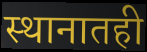
स्थानातही